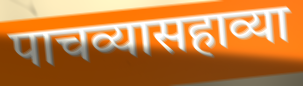
पाचव्यासहाव्या